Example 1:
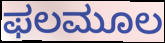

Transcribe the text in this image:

ಫಲಮೂಲ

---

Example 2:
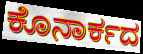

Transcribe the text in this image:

ಕೊನಾರ್ಕದ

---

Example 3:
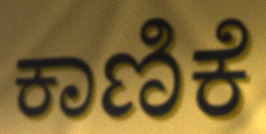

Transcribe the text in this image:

ಕಾಣಿಕೆ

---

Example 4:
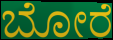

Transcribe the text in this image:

ಬೋರೆ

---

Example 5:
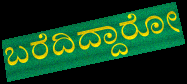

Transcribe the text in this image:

ಬರೆದಿದ್ದಾರೋ